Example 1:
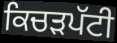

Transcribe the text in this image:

ਕਿਚੜਪੱਟੀ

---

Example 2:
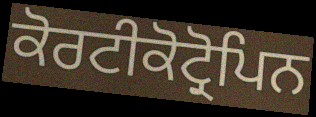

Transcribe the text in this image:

ਕੋਰਟੀਕੋਟ੍ਰੋਪਿਨ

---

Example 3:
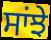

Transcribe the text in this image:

ਸਾਂਝੇ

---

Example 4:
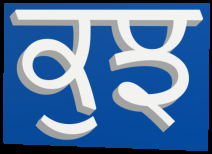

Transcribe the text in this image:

ਕੁਝ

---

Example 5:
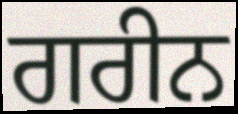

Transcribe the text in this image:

ਗਰੀਨ